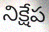
నిక్షేప